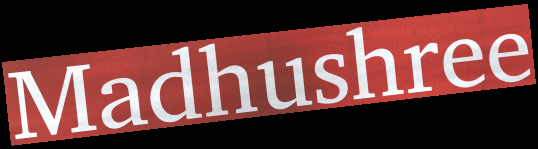
Madhushree